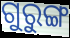
ଗୁରୁଙ୍ଗ